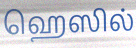
ஹெஸில்